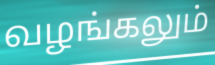
வழங்கலும்